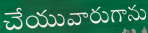
చేయువారుగాను